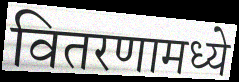
वितरणामध्ये